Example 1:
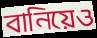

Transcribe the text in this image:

বানিয়েও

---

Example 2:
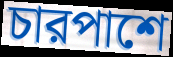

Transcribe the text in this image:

চারপাশে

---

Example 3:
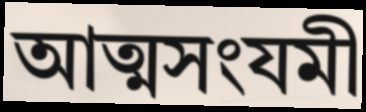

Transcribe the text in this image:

আত্মসংযমী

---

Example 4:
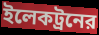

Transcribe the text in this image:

ইলেকট্রনের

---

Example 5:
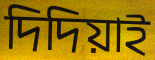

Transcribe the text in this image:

দিদিয়াই